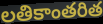
లతికాంతరిత